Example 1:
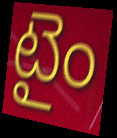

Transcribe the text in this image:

టైం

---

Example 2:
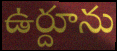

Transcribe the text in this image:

ఉర్దూను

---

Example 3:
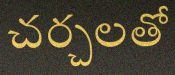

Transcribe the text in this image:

చర్చలతో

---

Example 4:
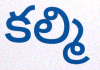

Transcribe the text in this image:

కల్మి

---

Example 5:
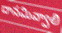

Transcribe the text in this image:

దానమివ్వాలి